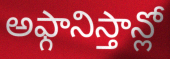
అఫ్గానిస్తాన్లో